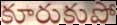
కూరుకుపో